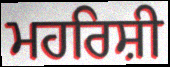
ਮਹਰਿਸ਼ੀ